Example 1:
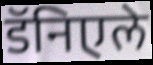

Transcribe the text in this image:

डॅनिएले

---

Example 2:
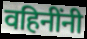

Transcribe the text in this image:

वहिनींनी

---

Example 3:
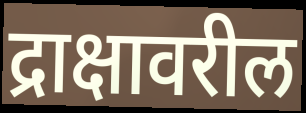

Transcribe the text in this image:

द्राक्षावरील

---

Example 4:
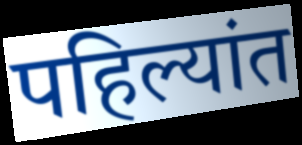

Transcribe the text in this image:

पहिल्यांत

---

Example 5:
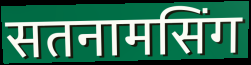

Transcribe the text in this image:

सतनामसिंग